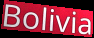
Bolivia